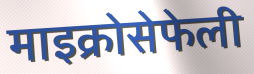
माइक्रोसेफेली